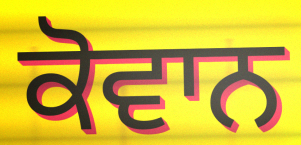
ਕੋਵਾਨ